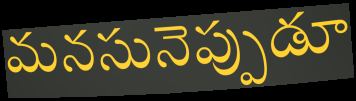
మనసునెప్పుడూ